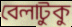
বেলাটুকু